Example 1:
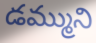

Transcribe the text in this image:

డమ్ముని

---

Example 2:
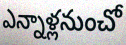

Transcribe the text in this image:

ఎన్నాళ్లనుంచో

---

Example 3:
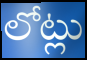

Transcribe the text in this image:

లోట్లు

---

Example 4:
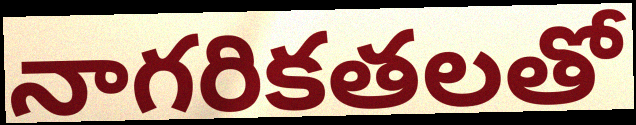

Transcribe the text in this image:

నాగరికతలతో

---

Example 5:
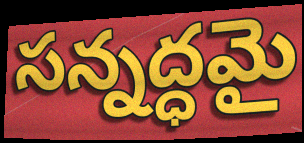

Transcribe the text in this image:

సన్నద్ధమై